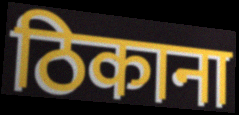
ठिकाना